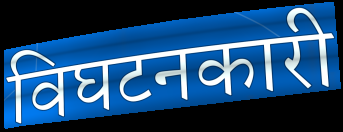
विघटनकारी